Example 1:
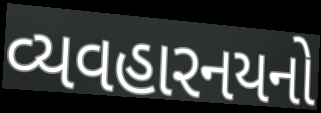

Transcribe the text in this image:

વ્યવહારનયનો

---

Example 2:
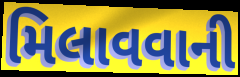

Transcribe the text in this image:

મિલાવવાની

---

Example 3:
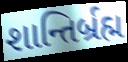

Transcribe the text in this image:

શાન્તિર્બ્રહ્મ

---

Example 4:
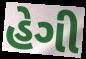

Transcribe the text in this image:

હેગી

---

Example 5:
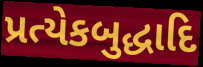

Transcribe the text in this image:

પ્રત્યેકબુદ્ધાદિ